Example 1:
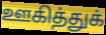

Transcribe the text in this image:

ஊகித்துக்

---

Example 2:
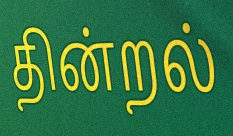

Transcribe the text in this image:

தின்றல்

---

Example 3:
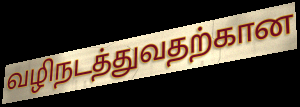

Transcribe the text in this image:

வழிநடத்துவதற்கான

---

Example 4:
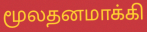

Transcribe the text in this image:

மூலதனமாக்கி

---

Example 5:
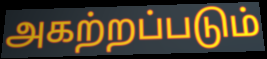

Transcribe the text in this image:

அகற்றப்படும்